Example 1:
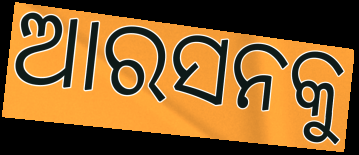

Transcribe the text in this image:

ଆରସନକୁ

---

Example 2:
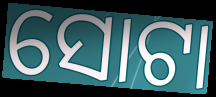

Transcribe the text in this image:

ସୋଟା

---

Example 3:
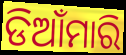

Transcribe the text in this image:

ଡିଆଁମାରି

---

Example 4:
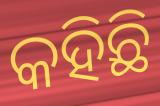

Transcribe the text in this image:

କହିଛି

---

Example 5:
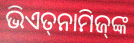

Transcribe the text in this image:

ଭିଏତ୍‌ନାମିଜ୍‌ଙ୍କ